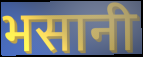
भसानी